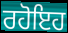
ਰਹੋਇਹ